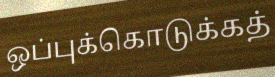
ஒப்புக்கொடுக்கத்